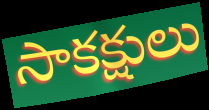
సాకక్షులు